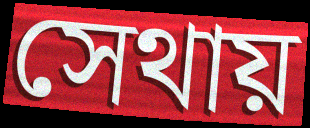
সেথায়